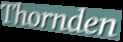
Thornden